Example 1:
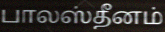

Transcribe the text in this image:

பாலஸ்தீனம்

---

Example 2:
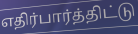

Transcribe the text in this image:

எதிர்பார்த்திட்டு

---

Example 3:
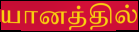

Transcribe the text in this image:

யானத்தில்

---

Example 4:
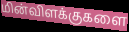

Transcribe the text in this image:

மின்விளக்குகளை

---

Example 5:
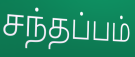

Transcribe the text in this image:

சந்தப்பம்